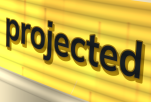
projected